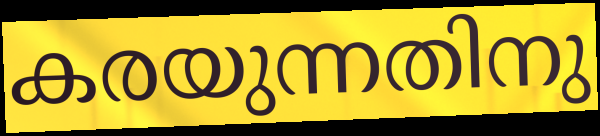
കരയുന്നതിനു